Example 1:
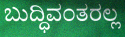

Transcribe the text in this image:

ಬುದ್ಧಿವಂತರಲ್ಲ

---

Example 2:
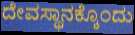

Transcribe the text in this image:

ದೇವಸ್ಥಾನಕ್ಕೊಂದು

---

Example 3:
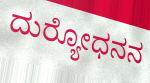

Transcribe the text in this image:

ದುರ‍್ಯೋಧನನ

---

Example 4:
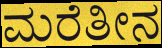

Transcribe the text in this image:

ಮರೆತೀನ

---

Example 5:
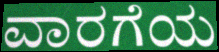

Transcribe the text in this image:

ವಾರಗೆಯ